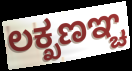
ಲಕ್ಖಣಞ್ಚ